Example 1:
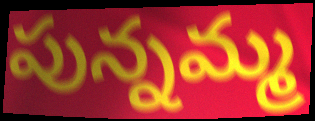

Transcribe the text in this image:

పున్నమ్మ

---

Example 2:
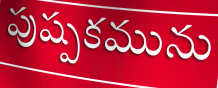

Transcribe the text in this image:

పుష్పకమును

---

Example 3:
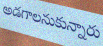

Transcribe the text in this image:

అడగాలనుకున్నారు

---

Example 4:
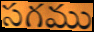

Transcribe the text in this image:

సగము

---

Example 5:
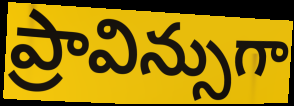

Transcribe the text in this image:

ప్రావిన్సుగా